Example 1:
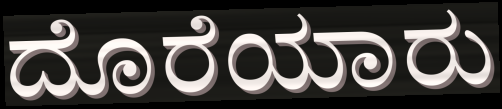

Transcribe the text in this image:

ದೊರೆಯಾರು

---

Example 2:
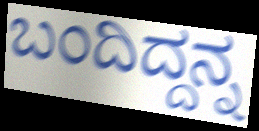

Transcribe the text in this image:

ಬಂದಿದ್ದನ್ನ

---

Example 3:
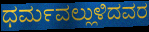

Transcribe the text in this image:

ಧರ್ಮವಲ್ಲುಳಿದವರ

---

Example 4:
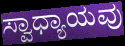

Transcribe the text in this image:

ಸ್ವಾಧ್ಯಾಯವು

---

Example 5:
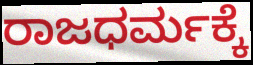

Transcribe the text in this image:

ರಾಜಧರ್ಮಕ್ಕೆ